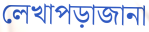
লেখাপড়াজানা